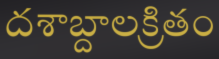
దశాబ్దాలక్రితం